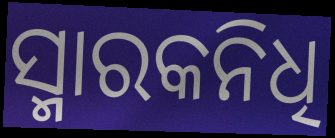
ସ୍ମାରକନିଧି